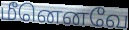
மீனெனவே